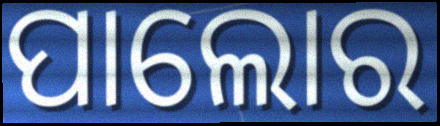
ପାଲୋର